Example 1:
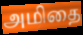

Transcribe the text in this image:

அமிதை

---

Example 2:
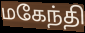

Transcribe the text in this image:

மகேந்தி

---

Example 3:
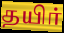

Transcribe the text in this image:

தயிர்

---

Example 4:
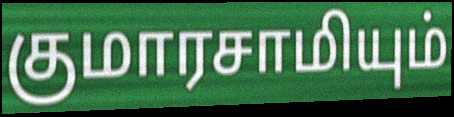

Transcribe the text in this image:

குமாரசாமியும்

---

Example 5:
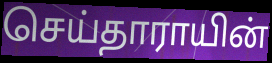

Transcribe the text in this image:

செய்தாராயின்